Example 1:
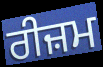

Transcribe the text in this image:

ਰੀਜ਼ਮ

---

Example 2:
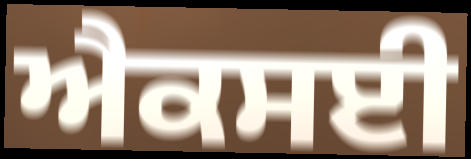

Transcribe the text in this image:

ਐਕਸਈ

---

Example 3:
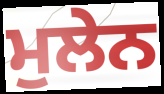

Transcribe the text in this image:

ਮੁਲੇਨ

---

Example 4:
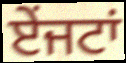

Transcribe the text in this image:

ਏਂਜਟਾਂ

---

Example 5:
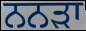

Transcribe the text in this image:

ਨਨੜਾ